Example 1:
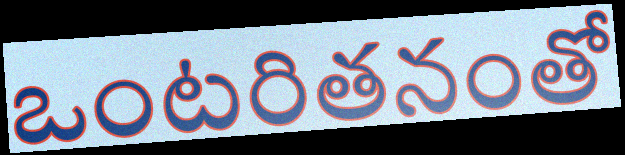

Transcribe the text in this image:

ఒంటరితనంతో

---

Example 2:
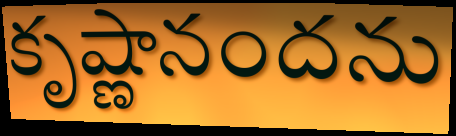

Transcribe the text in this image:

కృష్ణానందను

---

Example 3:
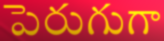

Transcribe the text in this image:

పెరుగుగా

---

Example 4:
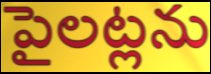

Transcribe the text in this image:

పైలట్లను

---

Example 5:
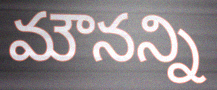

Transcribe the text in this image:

మౌనన్ని